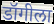
डॉगीला